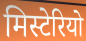
मिस्टेरियो